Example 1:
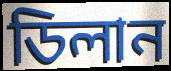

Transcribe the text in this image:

ডিলান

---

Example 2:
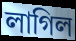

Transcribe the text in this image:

লাগিল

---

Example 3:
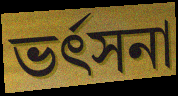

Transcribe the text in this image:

ভৰ্ৎসনা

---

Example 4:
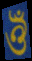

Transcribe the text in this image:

ঔঁ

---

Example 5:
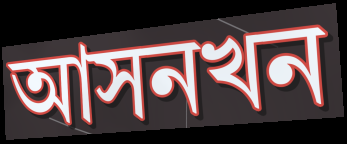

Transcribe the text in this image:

আসনখন